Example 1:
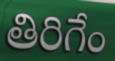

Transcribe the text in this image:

తిరిగేం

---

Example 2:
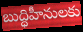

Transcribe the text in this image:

బుద్ధిహీనులకు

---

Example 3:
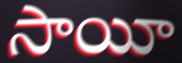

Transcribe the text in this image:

సాయీ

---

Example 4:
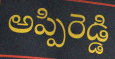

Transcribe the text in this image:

అప్పిరెడ్డి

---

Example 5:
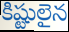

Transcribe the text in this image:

కిష్టులైన